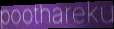
poothareku